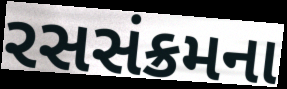
રસસંક્રમના